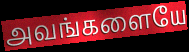
அவங்களையே